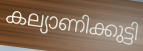
കല്യാണിക്കുട്ടി